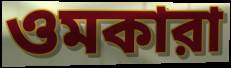
ওমকারা